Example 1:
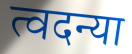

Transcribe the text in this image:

त्वदन्या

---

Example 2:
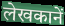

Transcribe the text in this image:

लेखकानें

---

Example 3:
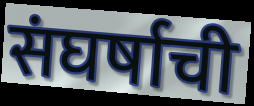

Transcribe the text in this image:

संघर्षाची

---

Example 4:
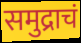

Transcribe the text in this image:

समुद्राचं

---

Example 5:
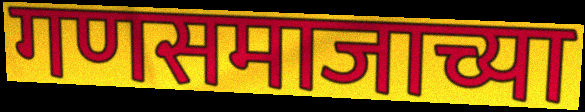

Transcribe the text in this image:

गणसमाजाच्या